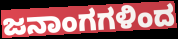
ಜನಾಂಗಗಳಿಂದ